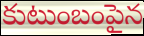
కుటుంబంపైన